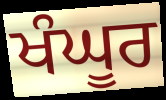
ਖੰਘੂਰ